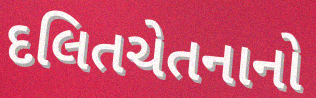
દલિતચેતનાનો